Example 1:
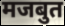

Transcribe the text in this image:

मजबुत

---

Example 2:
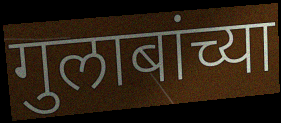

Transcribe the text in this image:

गुलाबांच्या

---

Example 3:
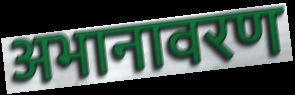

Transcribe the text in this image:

अभानावरण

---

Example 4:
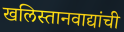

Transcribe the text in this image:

खलिस्तानवाद्यांची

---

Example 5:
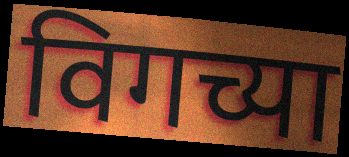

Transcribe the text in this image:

विगच्या